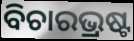
ବିଚାରଭ୍ରଷ୍ଟ